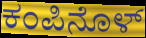
ಕಂಪಿನೊಳ್